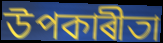
উপকাৰীতা